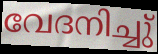
വേദനിച്ചു്